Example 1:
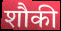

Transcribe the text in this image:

शौकी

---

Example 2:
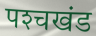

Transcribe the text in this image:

पश्चखंड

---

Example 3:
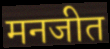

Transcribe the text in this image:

मनजीत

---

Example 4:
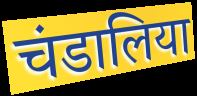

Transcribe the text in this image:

चंडालिया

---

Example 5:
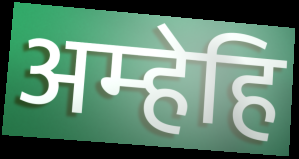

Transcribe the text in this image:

अम्हेहि